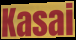
Kasai